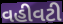
વહીવટી